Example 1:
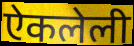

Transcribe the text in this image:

ऐकलेली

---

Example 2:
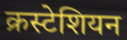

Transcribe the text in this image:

क्रस्टेशियन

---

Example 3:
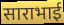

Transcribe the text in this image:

साराभाई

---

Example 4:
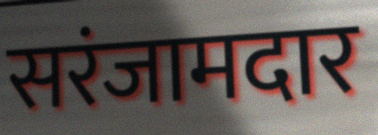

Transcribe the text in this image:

सरंजामदार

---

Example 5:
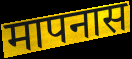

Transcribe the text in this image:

मापनास